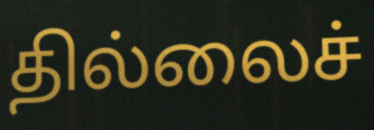
தில்லைச்